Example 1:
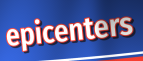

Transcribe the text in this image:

epicenters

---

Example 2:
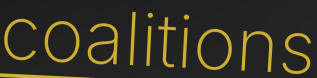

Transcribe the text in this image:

coalitions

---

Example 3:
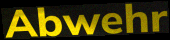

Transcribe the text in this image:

Abwehr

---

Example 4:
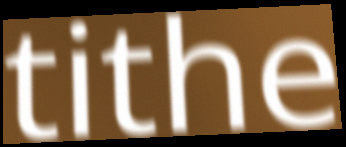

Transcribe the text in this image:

tithe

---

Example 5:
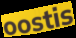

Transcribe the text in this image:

oostis